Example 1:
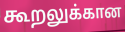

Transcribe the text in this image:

கூறலுக்கான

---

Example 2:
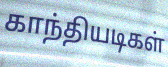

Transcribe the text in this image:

காந்தியடிகள்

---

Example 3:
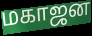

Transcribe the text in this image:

மகாஜன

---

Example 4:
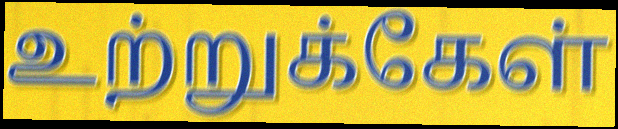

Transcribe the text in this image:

உற்றுக்கேள்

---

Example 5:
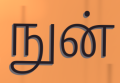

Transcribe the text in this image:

நுன்